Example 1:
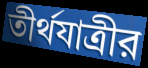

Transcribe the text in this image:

তীর্থযাত্রীর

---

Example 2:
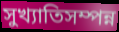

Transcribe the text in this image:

সুখ্যাতিসম্পন্ন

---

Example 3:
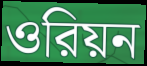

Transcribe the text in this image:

ওরিয়ন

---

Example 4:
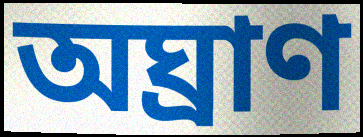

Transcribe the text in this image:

অঘ্রাণ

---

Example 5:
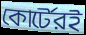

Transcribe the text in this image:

কোর্টেরই